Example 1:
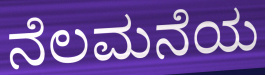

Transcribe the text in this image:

ನೆಲಮನೆಯ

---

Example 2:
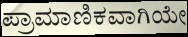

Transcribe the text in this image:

ಪ್ರಾಮಾಣಿಕವಾಗಿಯೇ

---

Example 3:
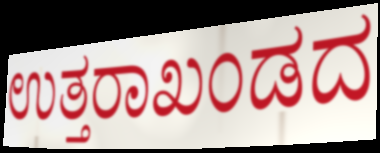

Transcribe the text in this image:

ಉತ್ತರಾಖಂಡದ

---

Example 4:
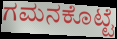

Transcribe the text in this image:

ಗಮನಕೊಟ್ಟೆ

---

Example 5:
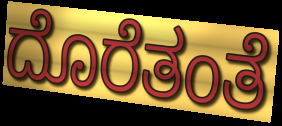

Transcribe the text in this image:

ದೊರೆತಂತೆ